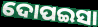
ଦୋପଇସା